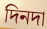
দিনদা